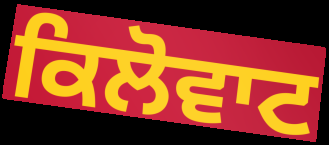
ਕਿਲੋਵਾਟ